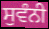
ਸੁਵੰਨੀ